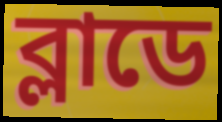
ব্লাডে